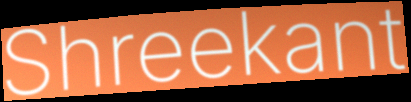
Shreekant